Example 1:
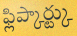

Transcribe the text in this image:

ఫ్లిప్కార్ట్కు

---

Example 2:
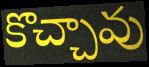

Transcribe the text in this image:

కొచ్చావు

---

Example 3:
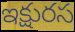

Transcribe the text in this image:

ఇక్షురస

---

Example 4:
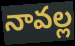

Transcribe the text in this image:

నావల్ల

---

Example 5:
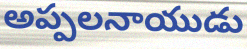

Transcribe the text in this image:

అప్పలనాయుడు